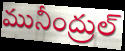
మునీంద్రుల్